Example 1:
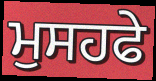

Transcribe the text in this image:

ਮੁਸਹਫੇ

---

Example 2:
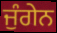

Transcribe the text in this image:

ਜੁੰਗੇਨ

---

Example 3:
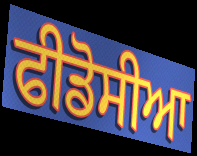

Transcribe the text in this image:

ਫੀਡੋਸੀਆ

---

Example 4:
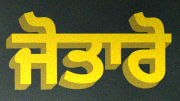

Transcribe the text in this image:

ਜੋਤਾਰੋ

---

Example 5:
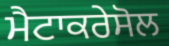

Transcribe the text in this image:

ਮੈਟਾਕਰੇਸੋਲ